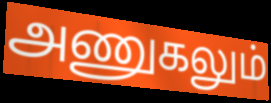
அணுகலும்